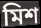
মিশ